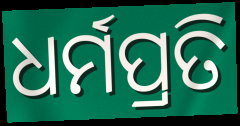
ଧର୍ମପ୍ରତି